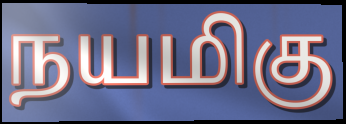
நயமிகு